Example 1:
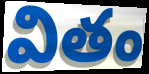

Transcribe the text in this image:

వితం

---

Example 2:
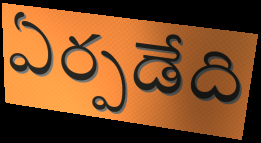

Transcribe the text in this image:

ఏర్పడేది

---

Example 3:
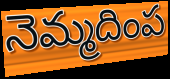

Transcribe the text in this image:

నెమ్మదింప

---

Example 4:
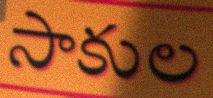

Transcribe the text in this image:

సాకుల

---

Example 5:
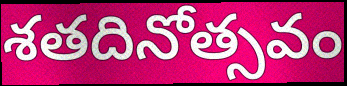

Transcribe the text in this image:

శతదినోత్సవం